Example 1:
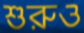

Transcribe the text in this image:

শুরুও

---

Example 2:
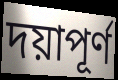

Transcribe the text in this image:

দয়াপূর্ণ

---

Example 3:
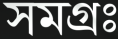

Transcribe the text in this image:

সমগ্রঃ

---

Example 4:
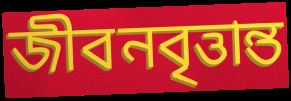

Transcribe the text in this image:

জীবনবৃত্তান্ত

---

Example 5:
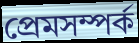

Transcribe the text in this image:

প্রেমসম্পর্ক